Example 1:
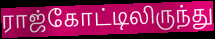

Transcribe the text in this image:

ராஜ்கோட்டிலிருந்து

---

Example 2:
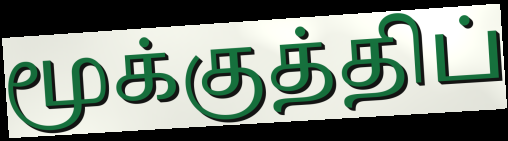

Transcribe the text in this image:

மூக்குத்திப்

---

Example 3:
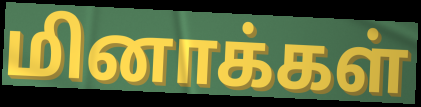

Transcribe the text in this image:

மினாக்கள்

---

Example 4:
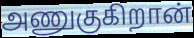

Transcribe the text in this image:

அணுகுகிறான்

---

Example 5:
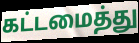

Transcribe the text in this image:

கட்டமைத்து